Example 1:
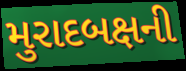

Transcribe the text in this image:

મુરાદબક્ષની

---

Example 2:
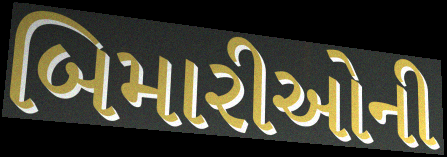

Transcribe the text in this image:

બિમારીઓની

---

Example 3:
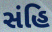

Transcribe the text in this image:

સંહિ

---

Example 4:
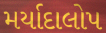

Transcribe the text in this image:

મર્યાદાલોપ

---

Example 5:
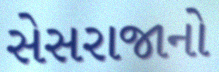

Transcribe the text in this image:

સેસરાજાનો